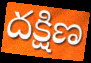
దక్షిణ